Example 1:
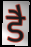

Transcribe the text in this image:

डै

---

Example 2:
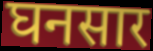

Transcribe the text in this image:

घनसार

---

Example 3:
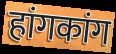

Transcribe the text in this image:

हांगकांग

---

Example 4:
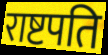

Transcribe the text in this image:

राष्टपति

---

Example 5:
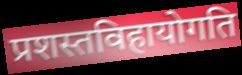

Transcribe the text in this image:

प्रशस्तविहायोगति